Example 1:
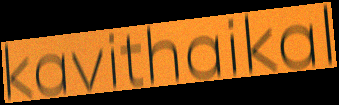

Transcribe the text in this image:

kavithaikal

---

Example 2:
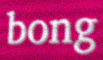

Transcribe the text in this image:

bong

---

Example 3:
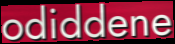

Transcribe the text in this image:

odiddene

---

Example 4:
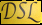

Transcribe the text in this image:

DSL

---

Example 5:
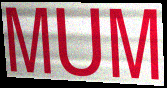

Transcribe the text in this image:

MUM